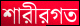
শারীরগত